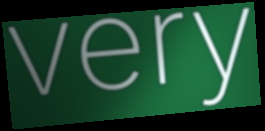
very